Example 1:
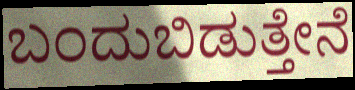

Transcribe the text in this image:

ಬಂದುಬಿಡುತ್ತೇನೆ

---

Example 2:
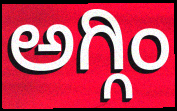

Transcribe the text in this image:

ಅಗ್ಗಿಂ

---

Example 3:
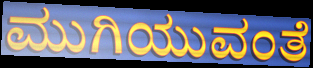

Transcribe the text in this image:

ಮುಗಿಯುವಂತೆ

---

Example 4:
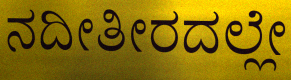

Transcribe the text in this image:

ನದೀತೀರದಲ್ಲೇ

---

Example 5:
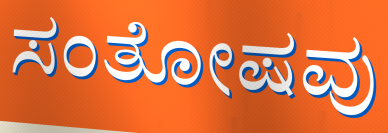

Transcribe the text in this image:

ಸಂತೋಷವು